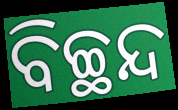
ବିଚ୍ଛନ୍ଦ